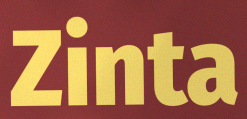
Zinta